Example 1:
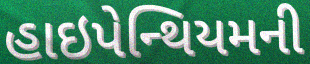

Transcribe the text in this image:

હાઇપેન્થિયમની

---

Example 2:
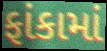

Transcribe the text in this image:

ફાંકામાં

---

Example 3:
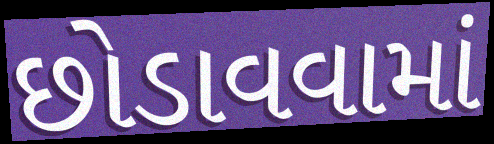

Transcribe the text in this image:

છોડાવવામાં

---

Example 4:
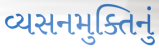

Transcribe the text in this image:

વ્યસનમુક્તિનું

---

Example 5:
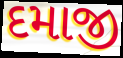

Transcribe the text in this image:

દમાજી